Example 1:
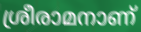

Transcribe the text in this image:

ശ്രീരാമനാണ്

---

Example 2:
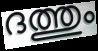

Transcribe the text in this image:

ദത്തും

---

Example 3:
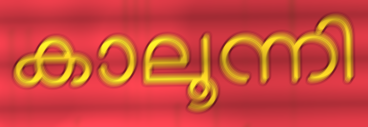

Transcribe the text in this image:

കാലൂന്നി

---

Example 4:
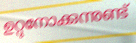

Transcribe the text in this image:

ഉറ്റുനോക്കുന്നുണ്ട്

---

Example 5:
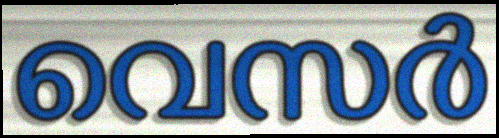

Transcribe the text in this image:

വെസർ